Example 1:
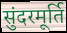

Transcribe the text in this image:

सुंदरमूर्ति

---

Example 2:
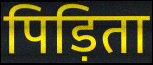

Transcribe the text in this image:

पिड़िता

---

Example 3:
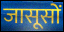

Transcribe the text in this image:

जासूसों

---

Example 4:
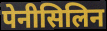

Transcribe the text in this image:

पेनीसिलिन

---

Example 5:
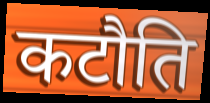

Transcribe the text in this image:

कटौति